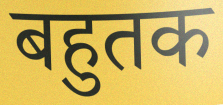
बहुतक